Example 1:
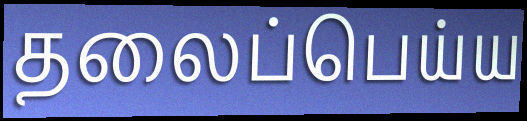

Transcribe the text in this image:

தலைப்பெய்ய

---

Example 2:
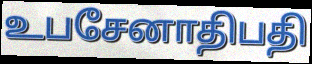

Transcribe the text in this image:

உபசேனாதிபதி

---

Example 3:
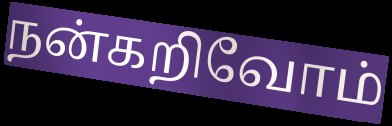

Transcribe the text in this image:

நன்கறிவோம்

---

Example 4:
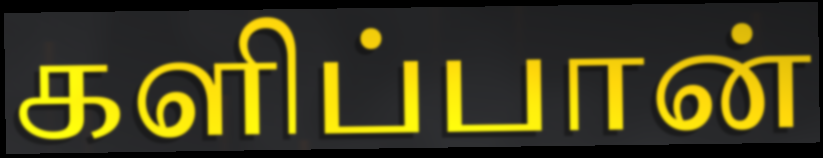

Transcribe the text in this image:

களிப்பான்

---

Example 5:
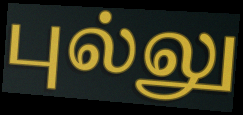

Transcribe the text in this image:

புல்லு